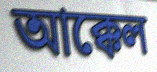
আক্কেল